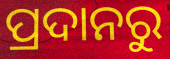
ପ୍ରଦାନରୁ